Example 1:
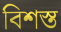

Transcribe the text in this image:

বিশস্ত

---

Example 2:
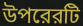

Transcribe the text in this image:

উপরেরটি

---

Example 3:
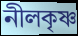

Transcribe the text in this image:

নীলকৃষ্ণ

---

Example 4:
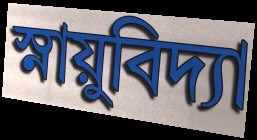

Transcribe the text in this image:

স্নায়ুবিদ্যা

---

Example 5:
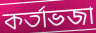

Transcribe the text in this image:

কর্তাভজা